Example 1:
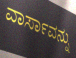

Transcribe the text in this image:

ವಾರ್ಸಾವನ್ನು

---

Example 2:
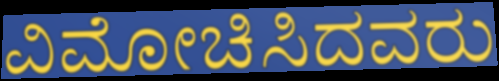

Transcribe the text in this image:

ವಿಮೋಚಿಸಿದವರು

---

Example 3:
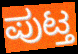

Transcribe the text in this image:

ಪುಟ್ತ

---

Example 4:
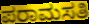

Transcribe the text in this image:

ಪರಾಮಸತಿ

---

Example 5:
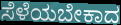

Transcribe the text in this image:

ಸೆಳೆಯಬೇಕಾದ